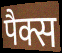
पैक्स